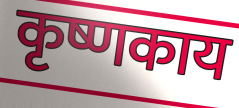
कृष्णकाय